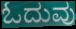
ಓದುವು